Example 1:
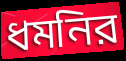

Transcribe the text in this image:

ধমনির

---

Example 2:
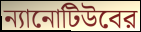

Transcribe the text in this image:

ন্যানোটিউবের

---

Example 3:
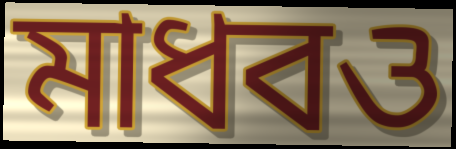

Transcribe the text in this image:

মাধবও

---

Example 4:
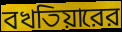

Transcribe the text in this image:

বখতিয়ারের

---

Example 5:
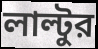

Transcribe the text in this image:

লাল্টুর